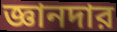
জ্ঞানদার